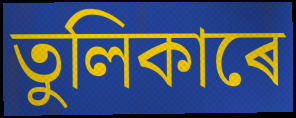
তুলিকাৰে